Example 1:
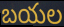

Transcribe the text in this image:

బయల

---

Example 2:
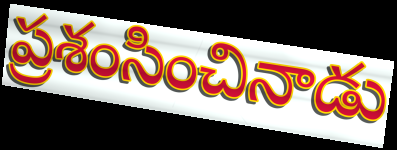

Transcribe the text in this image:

ప్రశంసించినాడు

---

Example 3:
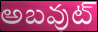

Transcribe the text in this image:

అబవుట్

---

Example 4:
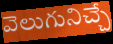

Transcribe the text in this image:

వెలుగునిచ్చే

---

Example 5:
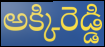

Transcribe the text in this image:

అక్కిరెడ్డి